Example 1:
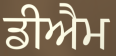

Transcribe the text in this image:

ਡੀਐਮ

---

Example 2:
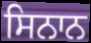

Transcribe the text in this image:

ਸਿਨਾਨ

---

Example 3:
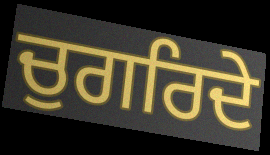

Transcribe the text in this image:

ਚੁਗਰਿਦੇ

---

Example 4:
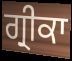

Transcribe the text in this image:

ਗ੍ਰੀਕਾ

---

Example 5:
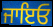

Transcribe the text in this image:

ਜਾਇਓ